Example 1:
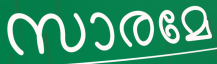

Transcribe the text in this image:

സാരമേ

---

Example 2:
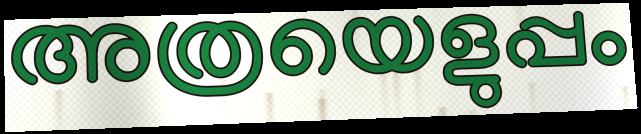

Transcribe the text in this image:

അത്രയെളുപ്പം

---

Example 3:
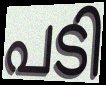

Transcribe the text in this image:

പടി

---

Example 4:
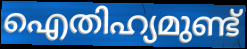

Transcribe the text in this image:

ഐതിഹ്യമുണ്ട്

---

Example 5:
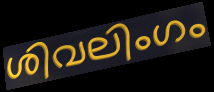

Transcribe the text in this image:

ശിവലിംഗം